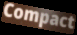
Compact